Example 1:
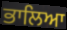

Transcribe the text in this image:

ਭਾਲਿਆ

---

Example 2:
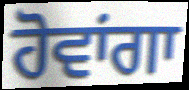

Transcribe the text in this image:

ਹੋਵਾਂਗਾ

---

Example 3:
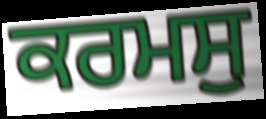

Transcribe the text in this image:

ਕਰਮਸੁ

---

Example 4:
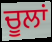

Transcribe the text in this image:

ਚੂਲਾਂ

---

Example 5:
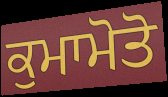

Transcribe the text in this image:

ਕੁਮਾਮੋਤੋ